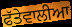
ਫੱਤੇਵਾਲੀਆ